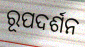
ରୂପଦର୍ଶନ